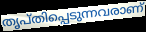
തൃപ്തിപ്പെടുന്നവരാണ്